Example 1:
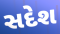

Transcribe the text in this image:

સદેશ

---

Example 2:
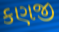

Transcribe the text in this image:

કણજી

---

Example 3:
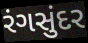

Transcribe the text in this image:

રંગસુંદર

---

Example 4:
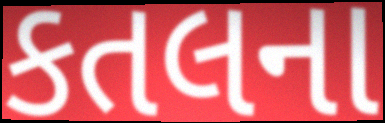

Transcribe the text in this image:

કતલના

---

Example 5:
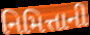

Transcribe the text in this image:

નિમિત્તાની